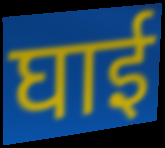
घाई